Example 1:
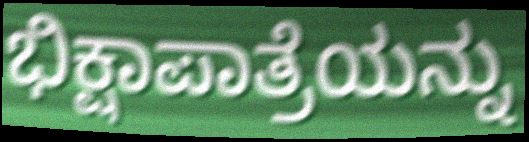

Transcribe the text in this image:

ಭಿಕ್ಷಾಪಾತ್ರೆಯನ್ನು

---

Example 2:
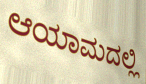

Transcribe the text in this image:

ಆಯಾಮದಲ್ಲಿ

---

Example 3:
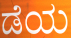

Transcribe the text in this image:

ಡೆಯ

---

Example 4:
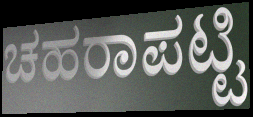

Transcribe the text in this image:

ಚಹರಾಪಟ್ಟಿ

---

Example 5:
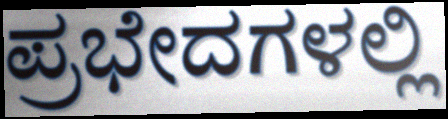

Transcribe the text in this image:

ಪ್ರಭೇದಗಳಲ್ಲಿ